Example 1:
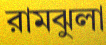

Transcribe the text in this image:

রামঝুলা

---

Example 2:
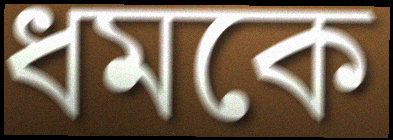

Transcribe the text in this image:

ধমকে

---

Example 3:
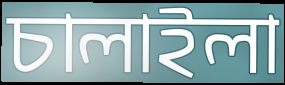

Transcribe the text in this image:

চালাইলা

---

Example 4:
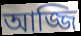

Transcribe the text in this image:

আজ্জি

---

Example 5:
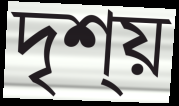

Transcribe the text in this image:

দৃশ্য়